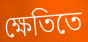
ক্ষেতিতে